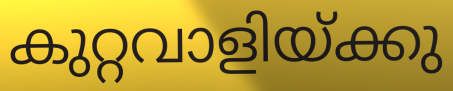
കുറ്റവാളിയ്ക്കു